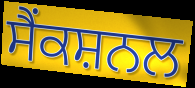
ਸੈਂਕਸ਼ਨਲ